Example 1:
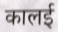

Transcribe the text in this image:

कालई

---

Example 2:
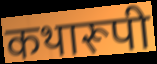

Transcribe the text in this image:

कथारूपी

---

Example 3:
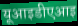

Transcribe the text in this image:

यूआइडीएआइ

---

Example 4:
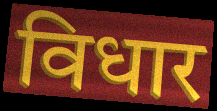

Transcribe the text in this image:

विधार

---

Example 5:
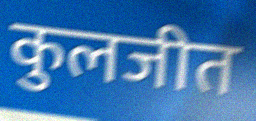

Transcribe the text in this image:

कुलजीत